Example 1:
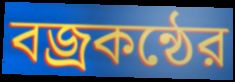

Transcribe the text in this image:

বজ্রকন্ঠের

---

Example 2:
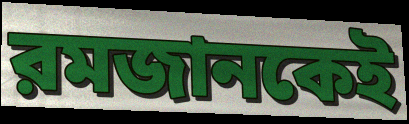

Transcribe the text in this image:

রমজানকেই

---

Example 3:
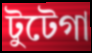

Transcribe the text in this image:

টুটেগা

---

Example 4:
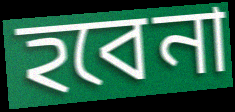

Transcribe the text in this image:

হবেনা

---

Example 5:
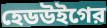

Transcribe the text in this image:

হেডউইগের